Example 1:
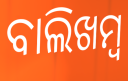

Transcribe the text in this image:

ବାଲିଖମ୍ବ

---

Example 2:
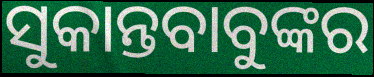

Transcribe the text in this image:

ସୁକାନ୍ତବାବୁଙ୍କର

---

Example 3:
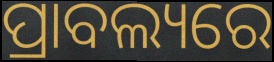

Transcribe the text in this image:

ପ୍ରାବଲ୍ୟରେ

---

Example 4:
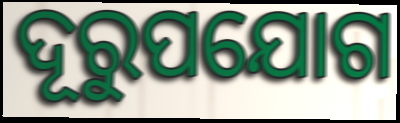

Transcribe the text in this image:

ଦୂରୁପଯୋଗ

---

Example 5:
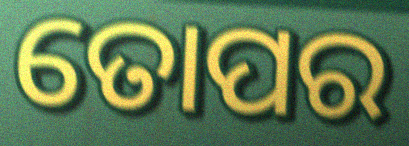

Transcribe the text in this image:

ତୋପର